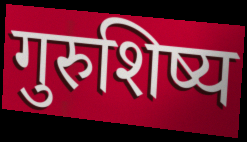
गुरुशिष्य